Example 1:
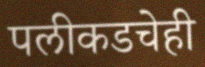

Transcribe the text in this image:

पलीकडचेही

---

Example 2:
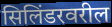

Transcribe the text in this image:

सिलिंडरवरील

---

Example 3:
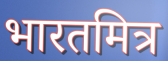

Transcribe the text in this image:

भारतमित्र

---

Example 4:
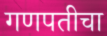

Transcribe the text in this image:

गणपतीचा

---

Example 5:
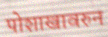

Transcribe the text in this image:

पोशाखावरुन